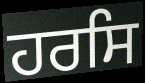
ਹਰਸਿ